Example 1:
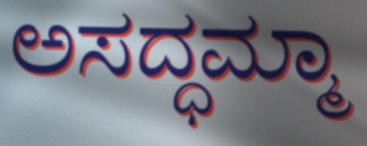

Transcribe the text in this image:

ಅಸದ್ಧಮ್ಮಾ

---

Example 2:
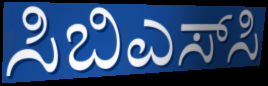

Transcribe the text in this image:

ಸಿಬಿಎಸ್‌ಸಿ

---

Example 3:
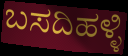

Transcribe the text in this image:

ಬಸದಿಹಳ್ಳಿ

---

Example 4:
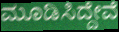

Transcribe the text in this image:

ಮೂಡಿಸಿದ್ದೇವೆ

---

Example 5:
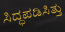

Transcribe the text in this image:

ಸಿದ್ಧಪಡಿಸಿತ್ತು